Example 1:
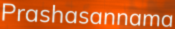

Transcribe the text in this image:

Prashasannama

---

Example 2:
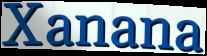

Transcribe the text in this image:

Xanana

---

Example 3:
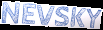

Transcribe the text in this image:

NEVSKY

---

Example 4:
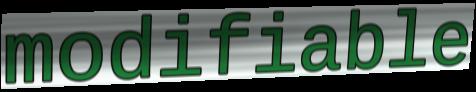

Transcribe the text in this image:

modifiable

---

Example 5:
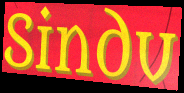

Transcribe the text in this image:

Sindu